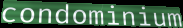
condominium